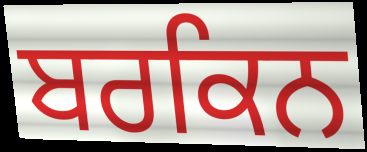
ਬਰਕਿਨ